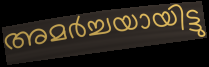
അമർച്ചയായിട്ടു